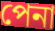
পেনা